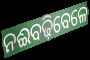
ନଈବଢ଼ିବେଳେ